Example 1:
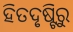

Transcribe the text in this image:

ହିତଦୃଷ୍ଟିରୁ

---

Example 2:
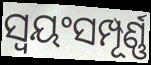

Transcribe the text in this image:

ସ୍ବୟଂସମ୍ପୂର୍ଣ୍ଣ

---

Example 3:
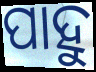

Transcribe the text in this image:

ପାହୁ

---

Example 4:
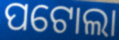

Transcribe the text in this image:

ପଟୋଲା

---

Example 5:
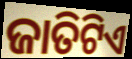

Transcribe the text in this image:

ଜାତିଟିଏ